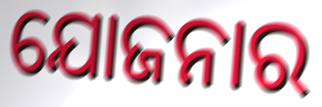
ଯୋଜନାର